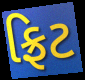
ફ્રિટ